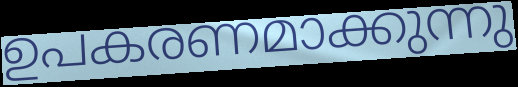
ഉപകരണമാക്കുന്നു